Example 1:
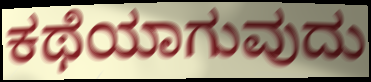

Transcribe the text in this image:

ಕಥೆಯಾಗುವುದು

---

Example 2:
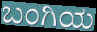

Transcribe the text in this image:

ಬಂಗಿಯ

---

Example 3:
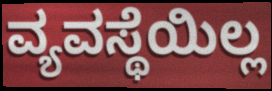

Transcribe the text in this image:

ವ್ಯವಸ್ಥೆಯಿಲ್ಲ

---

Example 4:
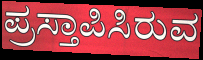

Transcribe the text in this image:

ಪ್ರಸ್ತಾಪಿಸಿರುವ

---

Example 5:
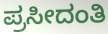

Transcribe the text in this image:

ಪ್ರಸೀದಂತಿ